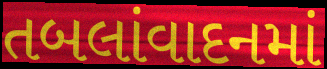
તબલાંવાદનમાં